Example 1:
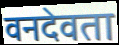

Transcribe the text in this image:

वनदेवता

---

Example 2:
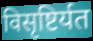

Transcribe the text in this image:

विसृष्टिर्यत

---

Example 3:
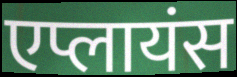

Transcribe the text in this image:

एप्लायंस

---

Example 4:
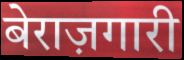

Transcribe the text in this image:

बेराज़गारी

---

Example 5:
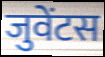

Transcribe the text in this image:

जुवेंटस